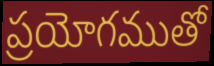
ప్రయోగముతో